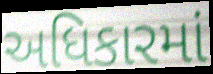
અધિકારમાં